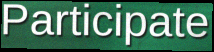
Participate